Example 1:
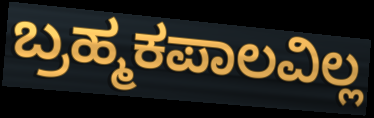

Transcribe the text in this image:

ಬ್ರಹ್ಮಕಪಾಲವಿಲ್ಲ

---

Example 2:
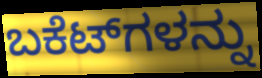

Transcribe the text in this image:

ಬಕೆಟ್‌ಗಳನ್ನು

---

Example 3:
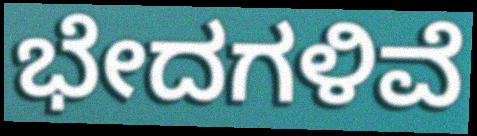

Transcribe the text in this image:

ಭೇದಗಳಿವೆ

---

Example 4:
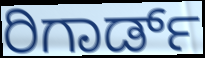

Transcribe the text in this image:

ರಿಗಾರ್ಡ್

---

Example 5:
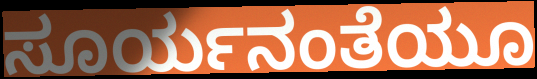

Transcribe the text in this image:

ಸೂರ್ಯನಂತೆಯೂ